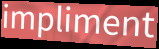
impliment